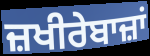
ਜ਼ਖੀਰੇਬਾਜ਼ਾਂ